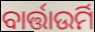
ବାର୍ତ୍ତାଉର୍ମି